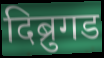
दिब्रुगड